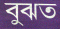
বুঝত